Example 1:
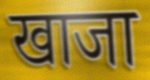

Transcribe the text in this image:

खाजा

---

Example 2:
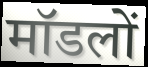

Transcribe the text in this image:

मॉडलों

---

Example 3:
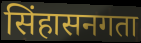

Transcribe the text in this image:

सिंहासनगता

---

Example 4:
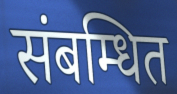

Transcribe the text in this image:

संबम्धित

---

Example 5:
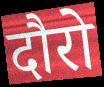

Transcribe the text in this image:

दौरो